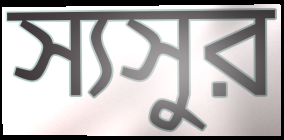
স্যসুর